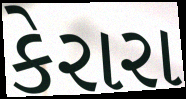
કેરારા